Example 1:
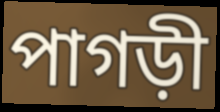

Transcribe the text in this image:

পাগড়ী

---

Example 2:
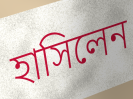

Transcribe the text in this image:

হাসিলেন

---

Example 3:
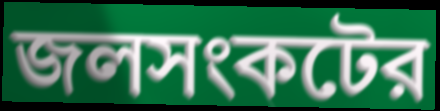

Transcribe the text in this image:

জলসংকটের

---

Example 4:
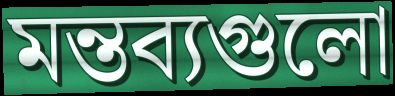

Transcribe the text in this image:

মন্তব্যগুলো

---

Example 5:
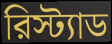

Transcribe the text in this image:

রিস্ট্যাড